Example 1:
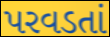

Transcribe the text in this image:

પરવડતાં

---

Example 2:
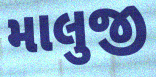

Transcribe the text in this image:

માલુજી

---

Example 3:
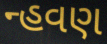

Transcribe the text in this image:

ન્હવણ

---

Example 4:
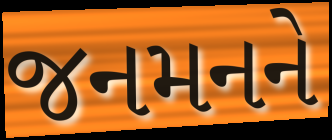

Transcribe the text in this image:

જનમનને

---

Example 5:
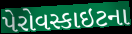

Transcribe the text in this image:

પેરોવસ્કાઇટના